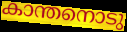
കാന്തനൊടു